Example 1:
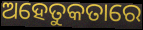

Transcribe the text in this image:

ଅହେତୁକତାରେ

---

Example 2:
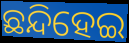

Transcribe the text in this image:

ଛନ୍ଦିହେଇ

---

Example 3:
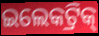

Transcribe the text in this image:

ଇଲେକଟ୍ରିକ୍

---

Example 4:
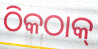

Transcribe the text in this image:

ଠିକଠାକ୍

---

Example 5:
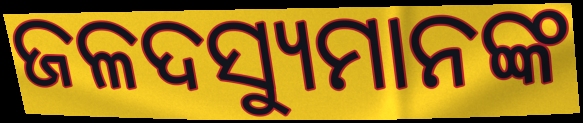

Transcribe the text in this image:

ଜଳଦସ୍ୟୁମାନଙ୍କ